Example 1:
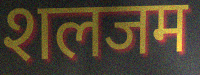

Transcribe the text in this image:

शलजम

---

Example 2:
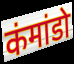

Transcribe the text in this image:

कंमांडो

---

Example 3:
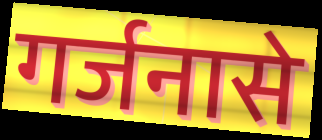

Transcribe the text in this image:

गर्जनासे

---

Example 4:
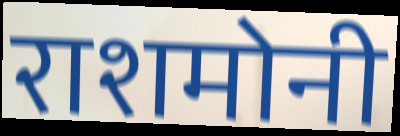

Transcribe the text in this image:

राशमोनी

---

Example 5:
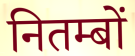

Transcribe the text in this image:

नितम्बों